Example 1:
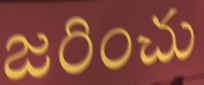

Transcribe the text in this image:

జరించు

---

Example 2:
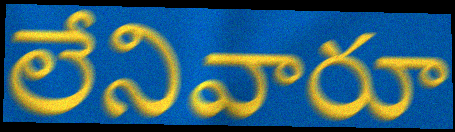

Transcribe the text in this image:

లేనివారూ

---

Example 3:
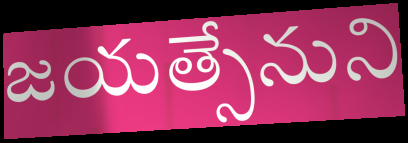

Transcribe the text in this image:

జయత్సేనుని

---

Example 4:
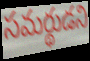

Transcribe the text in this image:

సమర్థుడని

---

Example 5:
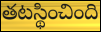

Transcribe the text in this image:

తటస్థించింది